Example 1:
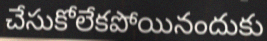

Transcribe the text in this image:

చేసుకోలేకపోయినందుకు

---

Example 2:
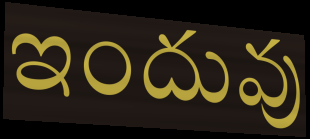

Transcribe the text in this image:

ఇందువు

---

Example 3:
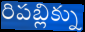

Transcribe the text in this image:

రిపబ్లిక్ను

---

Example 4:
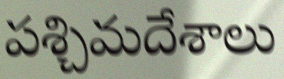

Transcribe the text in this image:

పశ్చిమదేశాలు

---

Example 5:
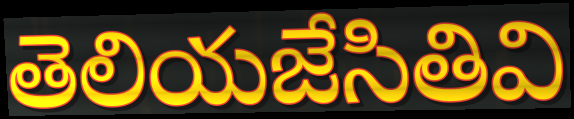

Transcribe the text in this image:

తెలియజేసితివి